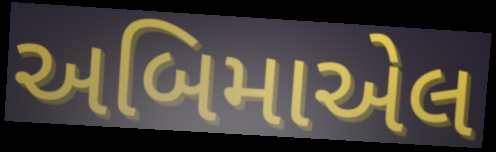
અબિમાએલ